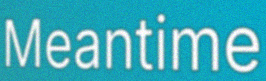
Meantime